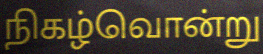
நிகழ்வொன்று